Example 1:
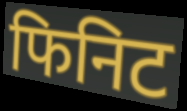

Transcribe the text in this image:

फिनिट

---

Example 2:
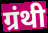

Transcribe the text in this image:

ग्रंथी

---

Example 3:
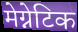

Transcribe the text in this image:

मेग्नेटिक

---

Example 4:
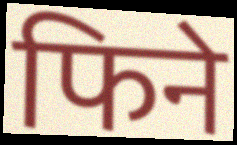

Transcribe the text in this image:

फिने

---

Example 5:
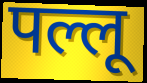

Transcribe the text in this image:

पल्लू